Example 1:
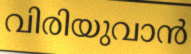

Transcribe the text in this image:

വിരിയുവാൻ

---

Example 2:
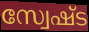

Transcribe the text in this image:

സ്വേഷ്ട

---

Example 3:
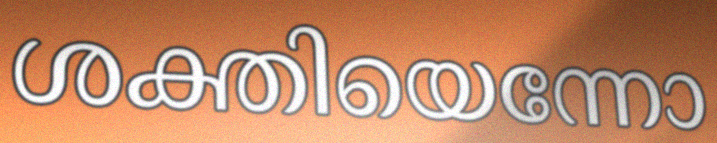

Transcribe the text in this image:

ശക്തിയെന്നോ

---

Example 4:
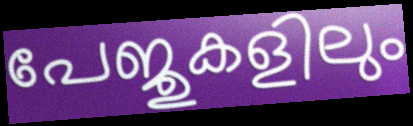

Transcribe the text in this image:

പേജുകളിലും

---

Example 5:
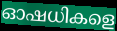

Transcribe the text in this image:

ഓഷധികളെ